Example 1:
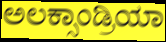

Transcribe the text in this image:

ಅಲಕ್ಸಾಂಡ್ರಿಯಾ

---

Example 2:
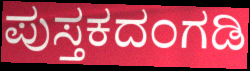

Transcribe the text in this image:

ಪುಸ್ತಕದಂಗಡಿ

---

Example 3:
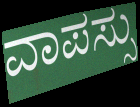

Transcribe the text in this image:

ವಾಪಸ್ಸು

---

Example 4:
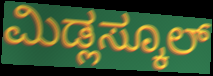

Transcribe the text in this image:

ಮಿಡ್ಲಸ್ಕೂಲ್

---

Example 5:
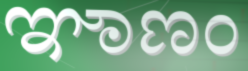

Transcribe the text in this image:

ಞಾಣಂ